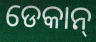
ଡେକାନ୍